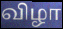
விழா